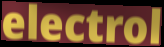
electrol